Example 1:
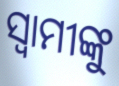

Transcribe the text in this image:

ସ୍ୱାମୀଙ୍କୁ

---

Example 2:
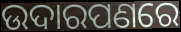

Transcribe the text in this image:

ଉଦାରପଣରେ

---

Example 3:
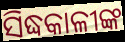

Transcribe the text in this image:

ସିଦ୍ଧକାଳୀଙ୍କ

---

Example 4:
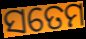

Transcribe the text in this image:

ସତେମ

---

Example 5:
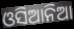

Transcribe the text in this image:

ଓସିଆନିଆ